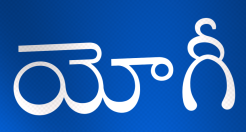
యోగీ